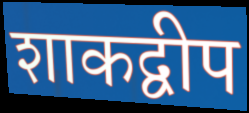
शाकद्वीप